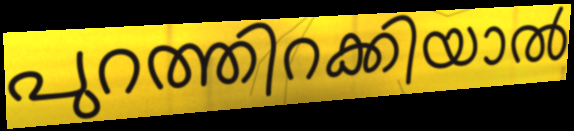
പുറത്തിറക്കിയാൽ